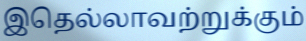
இதெல்லாவற்றுக்கும்